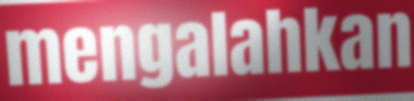
mengalahkan